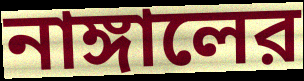
নাঙ্গালের